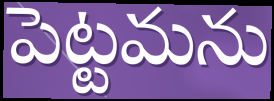
పెట్టమను